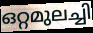
ഒറ്റമുലച്ചി